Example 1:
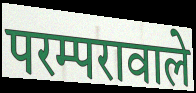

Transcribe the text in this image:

परम्परावाले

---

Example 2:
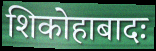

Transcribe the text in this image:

शिकोहाबादः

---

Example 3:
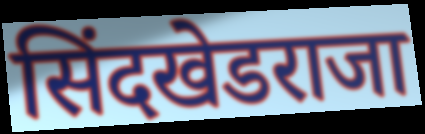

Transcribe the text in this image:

सिंदखेडराजा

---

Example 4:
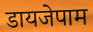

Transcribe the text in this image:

डायजेपाम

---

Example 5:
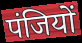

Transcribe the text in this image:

पंजियों